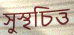
সুস্থচিত্ত